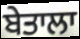
ਬੇਤਾਲਾ